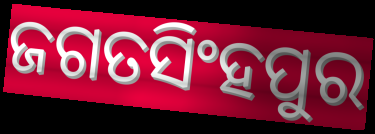
ଜଗତସିଂହପୁର